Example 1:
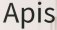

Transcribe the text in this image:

Apis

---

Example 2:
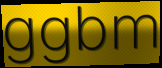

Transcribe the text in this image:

ggbm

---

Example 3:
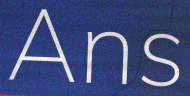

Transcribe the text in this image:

Ans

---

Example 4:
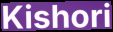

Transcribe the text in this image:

Kishori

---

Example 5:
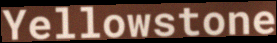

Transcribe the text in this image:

Yellowstone